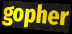
gopher